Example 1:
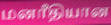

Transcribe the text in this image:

மனரீதியான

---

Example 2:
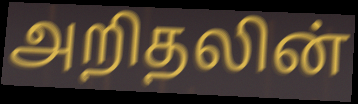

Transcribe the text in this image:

அறிதலின்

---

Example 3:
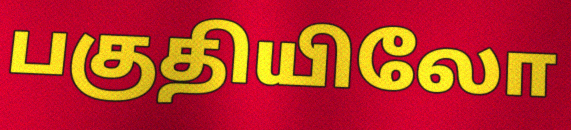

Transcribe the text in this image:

பகுதியிலோ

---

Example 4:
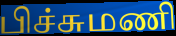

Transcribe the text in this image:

பிச்சுமணி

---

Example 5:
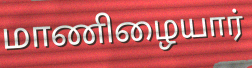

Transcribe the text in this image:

மாணிழையார்